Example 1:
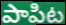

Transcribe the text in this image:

పాపిట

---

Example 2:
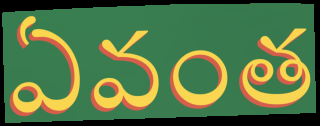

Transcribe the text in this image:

ఏవంత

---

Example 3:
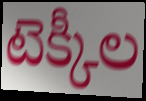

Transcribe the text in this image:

టెక్కీల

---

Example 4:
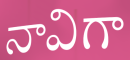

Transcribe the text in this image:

నావిగా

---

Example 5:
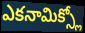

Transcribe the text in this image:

ఎకనామిక్స్లో